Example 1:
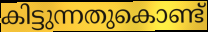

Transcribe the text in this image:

കിട്ടുന്നതുകൊണ്ട്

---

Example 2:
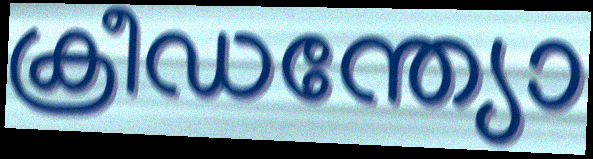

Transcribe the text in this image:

ക്രീഡന്ത്യോ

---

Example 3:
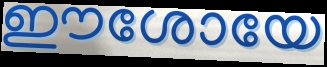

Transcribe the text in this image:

ഈശോയേ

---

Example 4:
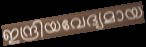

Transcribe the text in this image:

ഇന്ദ്രിയവേദ്യമായ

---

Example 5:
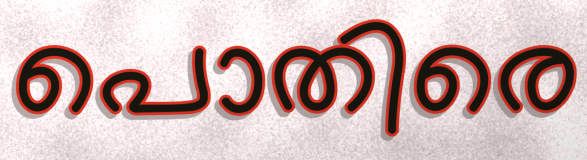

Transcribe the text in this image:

പൊതിരെ